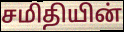
சமிதியின்